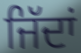
ਜਿੱਦਾਂ